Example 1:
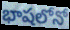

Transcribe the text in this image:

భాషలోనో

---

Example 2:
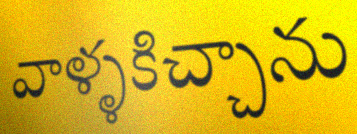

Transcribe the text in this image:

వాళ్ళకిచ్చాను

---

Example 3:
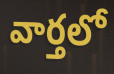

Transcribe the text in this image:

వార్తలో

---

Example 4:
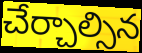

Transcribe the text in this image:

చేర్చాల్సిన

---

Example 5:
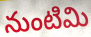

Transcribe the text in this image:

నుంటిమి